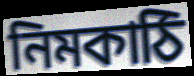
নিমকাঠি